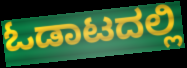
ಓಡಾಟದಲ್ಲಿ